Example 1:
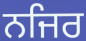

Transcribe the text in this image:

ਨਜਿਰ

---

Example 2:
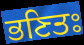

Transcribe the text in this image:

ਭਣਿਤਃ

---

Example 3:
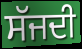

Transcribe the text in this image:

ਸੱਜਦੀ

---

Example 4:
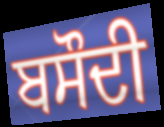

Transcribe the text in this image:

ਬਸੌਦੀ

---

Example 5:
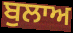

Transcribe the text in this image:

ਬੁਲਾਅ